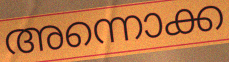
അന്നൊക്ക